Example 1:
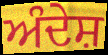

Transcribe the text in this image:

ਅੰਦੇਸ਼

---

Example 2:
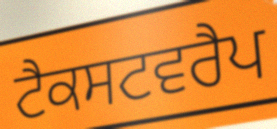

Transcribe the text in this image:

ਟੈਕਸਟਵਰੈਪ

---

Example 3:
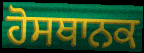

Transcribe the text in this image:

ਹੋਸਥਾਨਕ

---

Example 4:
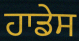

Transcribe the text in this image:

ਹਾਡੇਸ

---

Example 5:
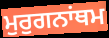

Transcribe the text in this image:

ਮੁਰੁਗਨਾਂਥਮ